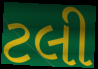
ટલી